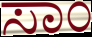
ಸಾಂ